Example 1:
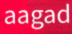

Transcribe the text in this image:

aagad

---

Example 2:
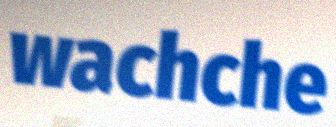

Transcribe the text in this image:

wachche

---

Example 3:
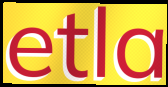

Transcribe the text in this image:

etla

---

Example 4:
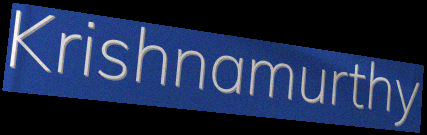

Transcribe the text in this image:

Krishnamurthy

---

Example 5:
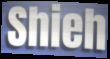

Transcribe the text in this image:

Shieh